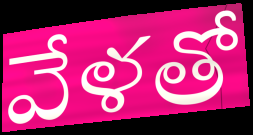
వేళతో